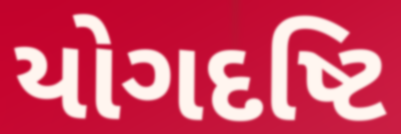
યોગદષ્ટિ